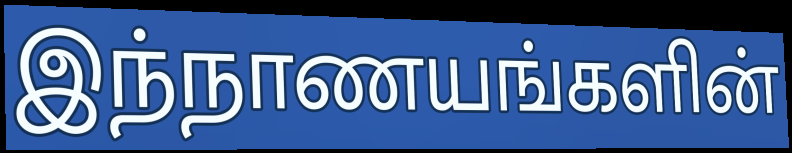
இந்நாணயங்களின்